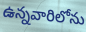
ఉన్నవారిలోను